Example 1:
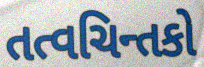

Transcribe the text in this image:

તત્વચિન્તકો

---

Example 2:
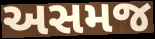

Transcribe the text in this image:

અસમજ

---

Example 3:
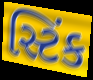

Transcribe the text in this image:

સ્ટિંક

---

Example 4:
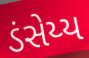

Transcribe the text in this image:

ડંસેય્ય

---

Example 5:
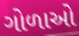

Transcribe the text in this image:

ગોળાઓ